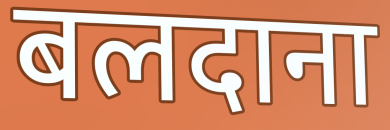
बलदाना